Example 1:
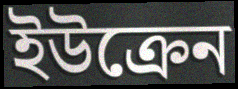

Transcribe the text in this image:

ইউক্রেন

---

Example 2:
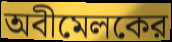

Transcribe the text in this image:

অবীমেলকের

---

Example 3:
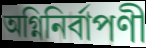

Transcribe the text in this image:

অগ্নিনির্বাপণী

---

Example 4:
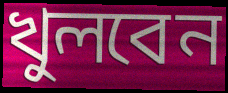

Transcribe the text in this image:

খুলবেন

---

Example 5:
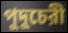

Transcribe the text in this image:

পুদুচেরী